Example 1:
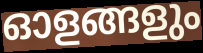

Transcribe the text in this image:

ഓളങ്ങളും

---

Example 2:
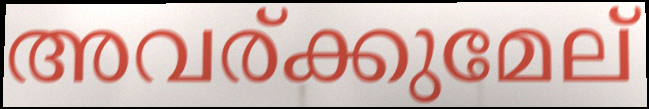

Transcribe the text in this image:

അവര്ക്കുമേല്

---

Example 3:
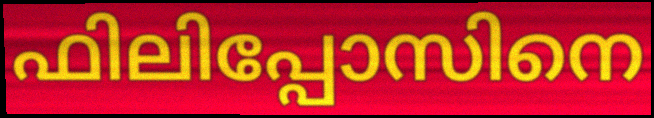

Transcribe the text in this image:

ഫിലിപ്പോസിനെ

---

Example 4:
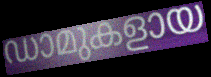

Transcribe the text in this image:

ഡാമുകളായ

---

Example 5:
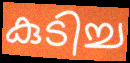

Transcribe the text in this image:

കുടിച്ച